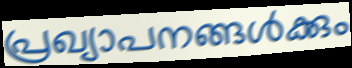
പ്രഖ്യാപനങ്ങൾക്കും